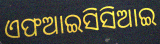
ଏଫଆଇସିସିଆଇ